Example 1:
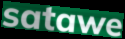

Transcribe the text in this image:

satawe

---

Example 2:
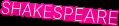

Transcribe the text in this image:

SHAKESPEARE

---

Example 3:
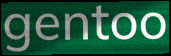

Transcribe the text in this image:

gentoo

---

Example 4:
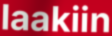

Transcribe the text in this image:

laakiin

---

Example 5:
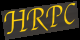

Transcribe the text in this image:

HRPC